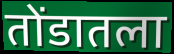
तोंडातला